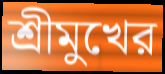
শ্রীমুখের